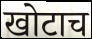
खोटाच